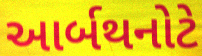
આર્બથનોટે